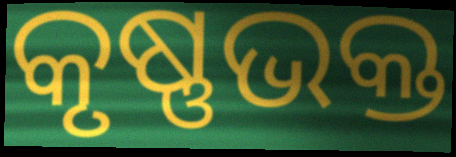
କୃଷ୍ଣଭକ୍ତ